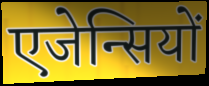
एजेन्सियों